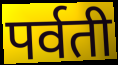
पर्वती